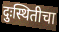
दुःस्थितीचा